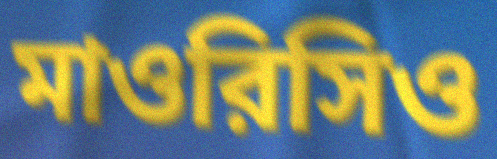
মাওরিসিও